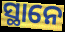
ସ୍ଥାନେ